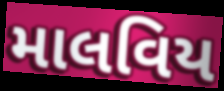
માલવિય